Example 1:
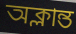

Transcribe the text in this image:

অক্লান্ত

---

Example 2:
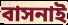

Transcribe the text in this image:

বাসনাই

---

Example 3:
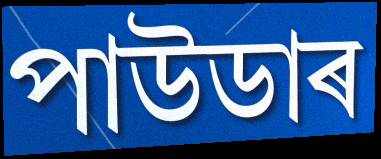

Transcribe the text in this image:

পাউডাৰ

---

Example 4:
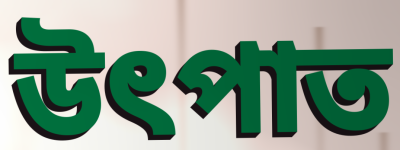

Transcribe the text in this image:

উৎপাত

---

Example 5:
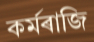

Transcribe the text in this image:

কৰ্মৰাজি